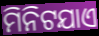
ମିନିଟଯାଏ